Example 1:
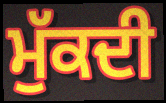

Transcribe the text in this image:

ਮੁੱਕਦੀ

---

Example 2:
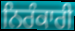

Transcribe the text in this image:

ਨਿਰੰਕਾਰੀ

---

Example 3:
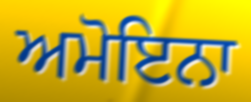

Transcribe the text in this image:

ਅਮੋਇਨਾ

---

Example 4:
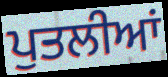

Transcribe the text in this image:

ਪੁਤਲੀਆਂ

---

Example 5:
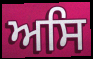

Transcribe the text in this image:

ਅਸਿ